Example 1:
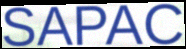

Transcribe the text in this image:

SAPAC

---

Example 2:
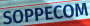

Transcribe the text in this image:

SOPPECOM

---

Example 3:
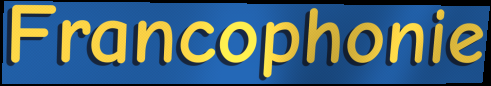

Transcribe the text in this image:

Francophonie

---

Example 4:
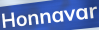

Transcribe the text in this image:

Honnavar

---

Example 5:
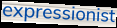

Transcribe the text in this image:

expressionist